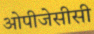
ओपीजेसीसी